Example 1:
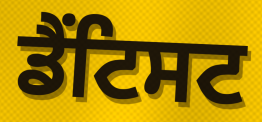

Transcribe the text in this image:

ਡੈਂਟਿਸਟ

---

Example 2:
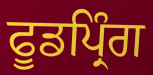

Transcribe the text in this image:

ਫੂਡਪ੍ਰਿੰਗ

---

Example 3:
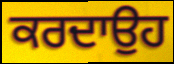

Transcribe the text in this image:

ਕਰਦਾਉਹ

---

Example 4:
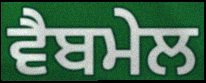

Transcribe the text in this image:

ਵੈਬਮੇਲ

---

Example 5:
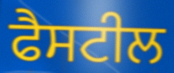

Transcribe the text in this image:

ਫੈਸਟੀਲ